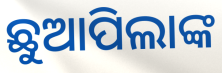
ଛୁଆପିଲାଙ୍କ